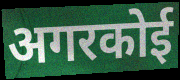
अगरकोई